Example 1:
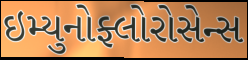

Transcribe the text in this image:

ઇમ્યુનોફ્લોરોસેન્સ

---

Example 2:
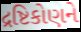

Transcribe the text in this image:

દ્રષ્ટિકોણને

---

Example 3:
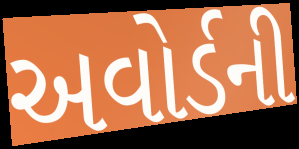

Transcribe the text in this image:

અવોર્ડની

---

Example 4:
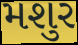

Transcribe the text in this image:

મશુર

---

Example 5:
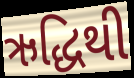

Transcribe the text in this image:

ઋદ્ધિથી